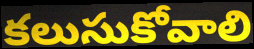
కలుసుకోవాలి